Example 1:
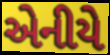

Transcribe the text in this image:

એનીયે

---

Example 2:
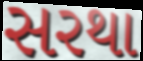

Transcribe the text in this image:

સરથા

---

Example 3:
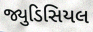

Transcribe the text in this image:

જ્યુડિસિયલ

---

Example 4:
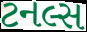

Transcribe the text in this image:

ટનલ્સ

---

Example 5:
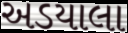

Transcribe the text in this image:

અડયાલા